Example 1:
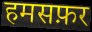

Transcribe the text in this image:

हमसफ़र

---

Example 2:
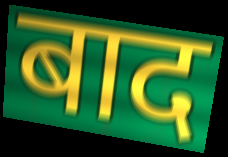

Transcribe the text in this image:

बाद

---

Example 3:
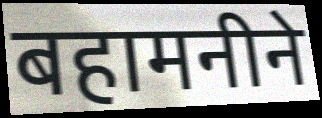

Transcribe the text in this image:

बहामनीने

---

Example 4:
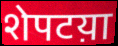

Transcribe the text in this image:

शेपटय़ा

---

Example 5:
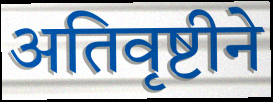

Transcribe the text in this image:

अतिवृष्टीने